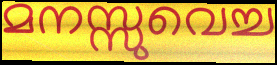
മനസ്സുവെച്ച